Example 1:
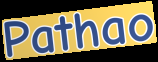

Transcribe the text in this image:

Pathao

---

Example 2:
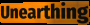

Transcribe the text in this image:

Unearthing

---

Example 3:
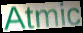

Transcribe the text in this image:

Atmic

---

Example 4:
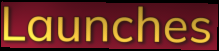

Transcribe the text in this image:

Launches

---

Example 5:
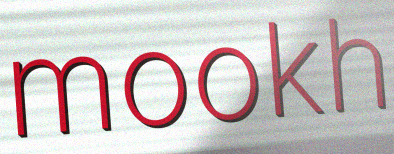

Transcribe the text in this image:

mookh